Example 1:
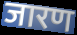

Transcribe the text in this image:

जारण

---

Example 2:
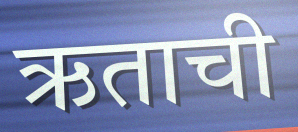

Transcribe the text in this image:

ऋताची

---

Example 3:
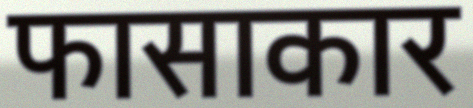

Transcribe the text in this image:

फासाकार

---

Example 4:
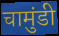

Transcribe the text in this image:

चामुंडी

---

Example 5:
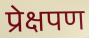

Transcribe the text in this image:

प्रेक्षपण